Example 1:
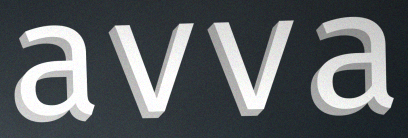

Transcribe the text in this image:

avva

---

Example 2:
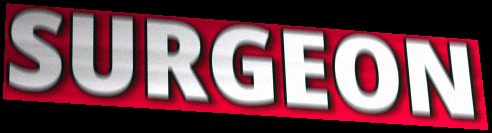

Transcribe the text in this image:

SURGEON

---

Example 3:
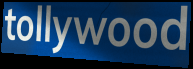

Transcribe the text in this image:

tollywood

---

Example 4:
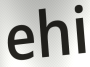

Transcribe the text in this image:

ehi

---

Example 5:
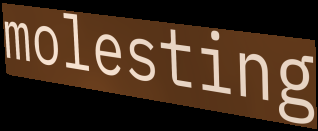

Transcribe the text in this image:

molesting